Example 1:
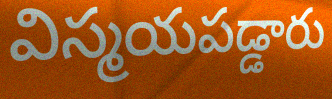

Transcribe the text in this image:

విస్మయపడ్డారు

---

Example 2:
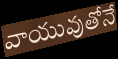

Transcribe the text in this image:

వాయువుతోనే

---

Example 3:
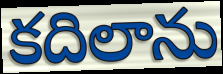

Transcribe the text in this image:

కదిలాను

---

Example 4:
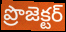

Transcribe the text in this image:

ప్రొజెక్టర్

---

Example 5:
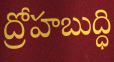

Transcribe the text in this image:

ద్రోహబుద్ధి